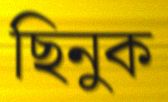
ছিনুক